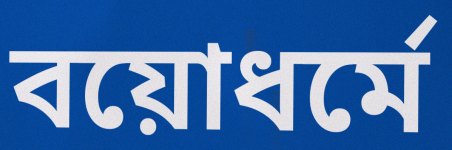
বয়োধর্মে